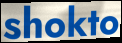
shokto